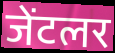
जेंटलर